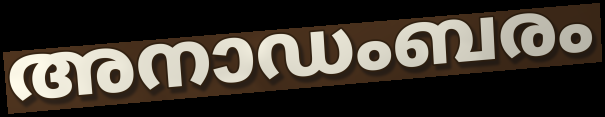
അനാഡംബരം